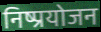
निष्प्रयोजन